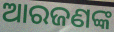
ଆରଜଣଙ୍କ